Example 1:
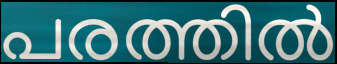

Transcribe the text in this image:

പരത്തിൽ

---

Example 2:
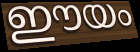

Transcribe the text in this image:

ഈയം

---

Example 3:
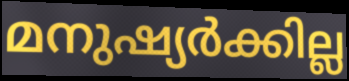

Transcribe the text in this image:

മനുഷ്യർക്കില്ല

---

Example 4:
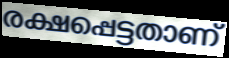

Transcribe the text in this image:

രക്ഷപ്പെട്ടതാണ്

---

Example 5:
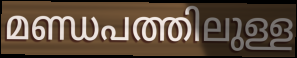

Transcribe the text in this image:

മണ്ഡപത്തിലുള്ള